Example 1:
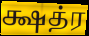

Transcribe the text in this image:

க்ஷத்ர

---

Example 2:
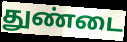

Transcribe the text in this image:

துண்டை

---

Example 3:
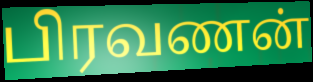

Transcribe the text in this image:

பிரவணன்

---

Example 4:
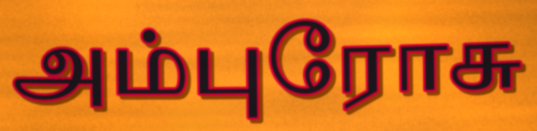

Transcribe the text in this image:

அம்புரோசு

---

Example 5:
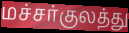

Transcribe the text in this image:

மச்சர்குலத்து